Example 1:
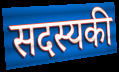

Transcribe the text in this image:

सदस्यकी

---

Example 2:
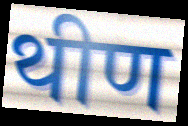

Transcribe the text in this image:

थीण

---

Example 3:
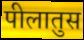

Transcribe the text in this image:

पीलातुस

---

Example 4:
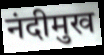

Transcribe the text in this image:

नंदीमुख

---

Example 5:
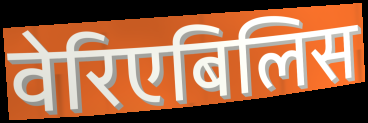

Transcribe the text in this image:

वेरिएबिलिस